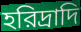
হরিদ্রাদি